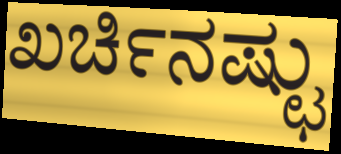
ಖರ್ಚಿನಷ್ಟು